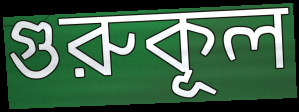
গুরুকূল